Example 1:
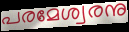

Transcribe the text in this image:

പരമേശ്വരനു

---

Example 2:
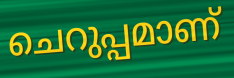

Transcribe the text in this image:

ചെറുപ്പമാണ്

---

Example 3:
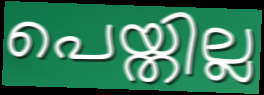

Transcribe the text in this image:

പെയ്തില്ല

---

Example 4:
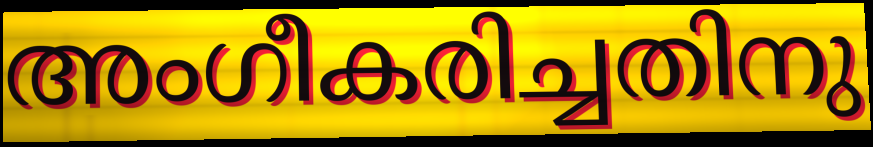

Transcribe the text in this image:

അംഗീകരിച്ചതിനു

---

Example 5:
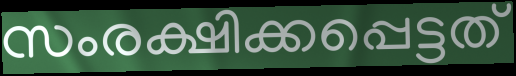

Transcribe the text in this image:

സംരക്ഷിക്കപ്പെട്ടത്